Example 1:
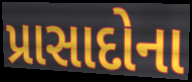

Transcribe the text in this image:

પ્રાસાદોના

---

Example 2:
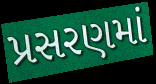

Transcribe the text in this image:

પ્રસરણમાં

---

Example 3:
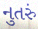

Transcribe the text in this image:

નુતરું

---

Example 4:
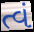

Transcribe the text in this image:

ત્વં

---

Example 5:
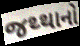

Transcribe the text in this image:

જથ્થાનો